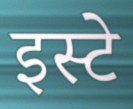
इस्टे